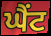
ਘੈਂਟ